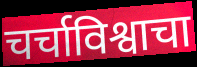
चर्चाविश्वाचा